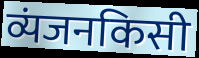
व्यंजनकिसी